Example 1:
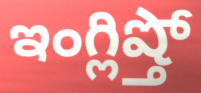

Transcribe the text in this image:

ఇంగ్లిష్తో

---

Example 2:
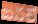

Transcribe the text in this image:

బనలే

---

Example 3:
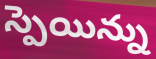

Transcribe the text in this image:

స్పెయిన్ను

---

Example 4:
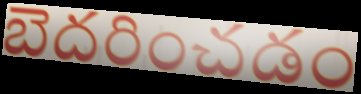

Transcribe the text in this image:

బెదరించడం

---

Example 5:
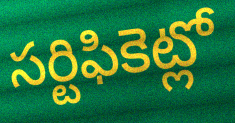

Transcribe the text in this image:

సర్టిఫికెట్లో